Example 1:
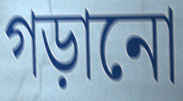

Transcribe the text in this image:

গড়ানো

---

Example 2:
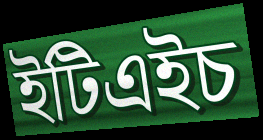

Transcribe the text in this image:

ইটিএইচ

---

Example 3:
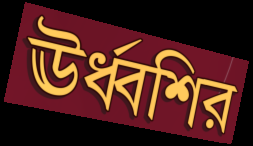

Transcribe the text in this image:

ঊর্ধ্বশির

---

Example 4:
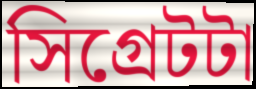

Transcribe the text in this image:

সিগ্রেটটা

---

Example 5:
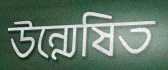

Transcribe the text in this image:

উন্মেষিত